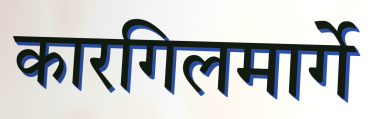
कारगिलमार्गे